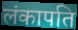
लंकापति